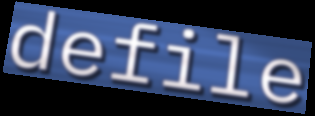
defile